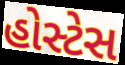
હોસ્ટેસ